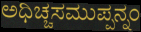
ಅಧಿಚ್ಚಸಮುಪ್ಪನ್ನಂ